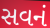
સવનં